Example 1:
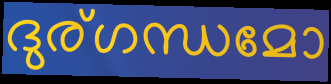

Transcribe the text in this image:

ദുര്ഗന്ധമോ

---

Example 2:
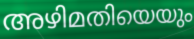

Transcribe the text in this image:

അഴിമതിയെയും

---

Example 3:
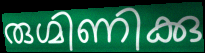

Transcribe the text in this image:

രുഗ്മിണിക്കു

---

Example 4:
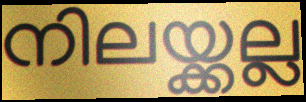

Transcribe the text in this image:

നിലയ്ക്കല്ല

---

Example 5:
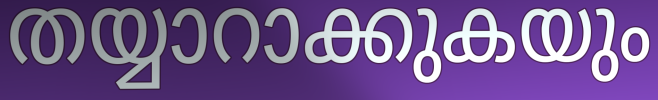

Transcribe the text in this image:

തയ്യാറാക്കുകയും